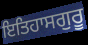
ਇਤਿਹਾਸਗੁਰੂ